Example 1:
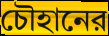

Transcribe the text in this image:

চৌহানের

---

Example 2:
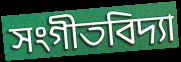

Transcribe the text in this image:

সংগীতবিদ্যা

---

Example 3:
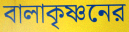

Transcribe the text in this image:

বালাকৃষ্ণনের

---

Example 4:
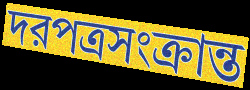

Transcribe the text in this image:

দরপত্রসংক্রান্ত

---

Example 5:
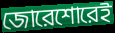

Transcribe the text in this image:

জোরেশোরেই